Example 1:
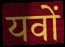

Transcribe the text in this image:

यवों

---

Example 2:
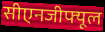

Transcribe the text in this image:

सीएनजीफ्यूल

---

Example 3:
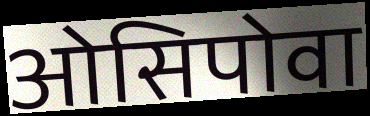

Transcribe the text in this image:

ओसिपोवा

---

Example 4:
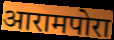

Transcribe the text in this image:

आरामपोरा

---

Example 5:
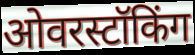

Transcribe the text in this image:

ओवरस्टॉकिंग